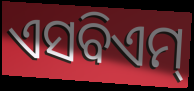
ଏସବିଏମ୍